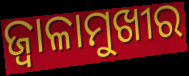
ଜ୍ୱାଳାମୁଖୀର